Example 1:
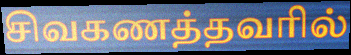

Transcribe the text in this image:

சிவகணத்தவரில்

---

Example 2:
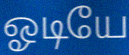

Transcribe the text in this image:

ஓடியே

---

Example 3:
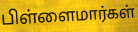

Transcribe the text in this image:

பிள்ளைமார்கள்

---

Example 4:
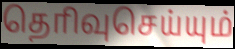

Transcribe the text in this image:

தெரிவுசெய்யும்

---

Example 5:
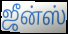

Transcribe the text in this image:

ஜீன்ஸ்